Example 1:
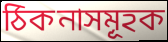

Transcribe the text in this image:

ঠিকনাসমূহক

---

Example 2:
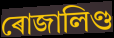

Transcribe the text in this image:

ৰোজালিণ্ড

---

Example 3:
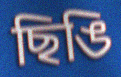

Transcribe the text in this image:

ছিঙি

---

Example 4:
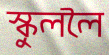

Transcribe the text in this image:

স্কুললৈ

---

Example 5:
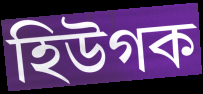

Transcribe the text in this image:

হিউগক